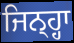
ਜਿਨ੍ਹ੍ਹਾ